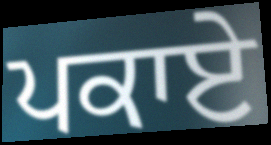
ਪਕਾਏ